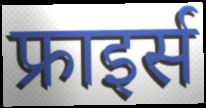
फ्राइर्स